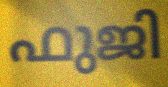
ഫുജി